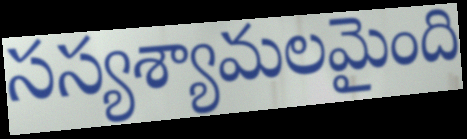
సస్యశ్యామలమైంది